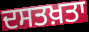
ਦਸਤਖ਼ਤਾ